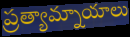
ప్రత్యామ్నాయాలు